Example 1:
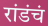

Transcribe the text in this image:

रांडंचं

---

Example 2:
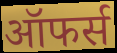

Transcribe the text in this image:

ऑफर्स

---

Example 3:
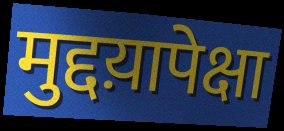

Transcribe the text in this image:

मुद्दय़ापेक्षा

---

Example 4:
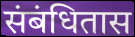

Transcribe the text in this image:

संबंधितास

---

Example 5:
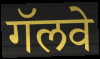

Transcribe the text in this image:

गॅलवे